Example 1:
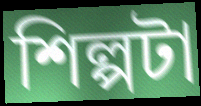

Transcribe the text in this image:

শিল্পটা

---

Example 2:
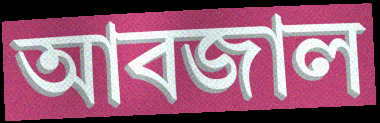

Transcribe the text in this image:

আবজাল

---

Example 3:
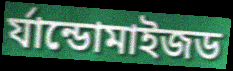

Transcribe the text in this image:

র্যান্ডোমাইজড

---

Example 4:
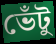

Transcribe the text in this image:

ভেঁটু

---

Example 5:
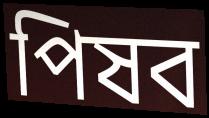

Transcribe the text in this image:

পিষব